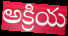
అక్రియ